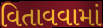
વિતાવવામાં